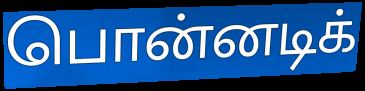
பொன்னடிக்